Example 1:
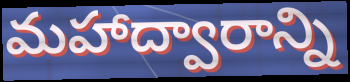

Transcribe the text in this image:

మహాద్వారాన్ని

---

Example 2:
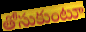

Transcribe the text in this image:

తోసుకుంటూ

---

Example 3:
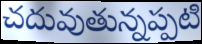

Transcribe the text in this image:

చదువుతున్నప్పటి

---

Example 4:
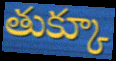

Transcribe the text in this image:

తుక్కూ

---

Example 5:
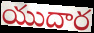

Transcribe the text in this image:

యుదార